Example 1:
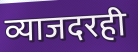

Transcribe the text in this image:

व्याजदरही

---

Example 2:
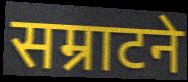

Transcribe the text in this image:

सम्राटने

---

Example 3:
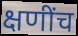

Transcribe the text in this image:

क्षणींच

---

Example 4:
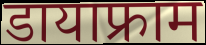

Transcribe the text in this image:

डायाफ्राम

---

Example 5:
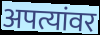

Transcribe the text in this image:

अपत्यांवर